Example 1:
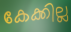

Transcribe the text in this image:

കേക്കില്ല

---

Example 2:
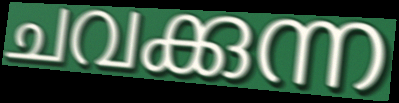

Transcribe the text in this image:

ചവക്കുന്ന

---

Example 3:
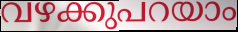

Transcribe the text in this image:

വഴക്കുപറയാം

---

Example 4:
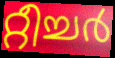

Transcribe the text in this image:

റ്റീച്ചർ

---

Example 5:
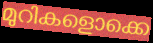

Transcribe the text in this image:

മുറികളൊക്കെ